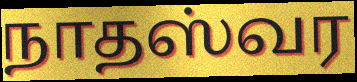
நாதஸ்வர